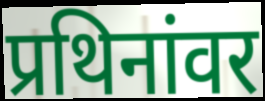
प्रथिनांवर